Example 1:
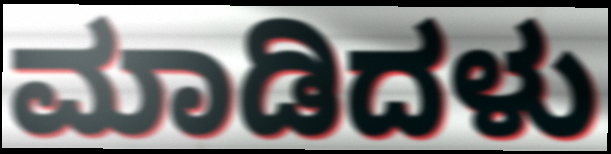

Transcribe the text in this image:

ಮಾಡಿದಳು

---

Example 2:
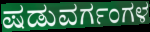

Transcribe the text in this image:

ಷಡುವರ್ಗಂಗಳ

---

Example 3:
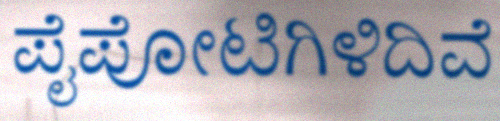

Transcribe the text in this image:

ಪೈಪೋಟಿಗಿಳಿದಿವೆ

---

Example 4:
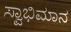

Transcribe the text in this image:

ಸ್ವಾಭಿಮಾನ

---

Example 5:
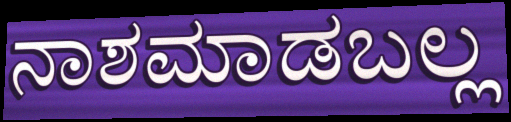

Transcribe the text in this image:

ನಾಶಮಾಡಬಲ್ಲ